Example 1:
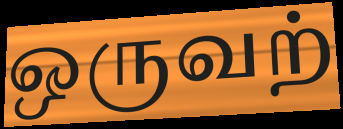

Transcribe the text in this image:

ஒருவற்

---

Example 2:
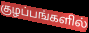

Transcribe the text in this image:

குழப்பங்களில்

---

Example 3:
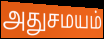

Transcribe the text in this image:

அதுசமயம்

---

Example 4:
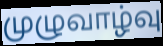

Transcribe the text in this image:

முழுவாழ்வு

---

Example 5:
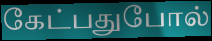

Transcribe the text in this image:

கேட்பதுபோல்